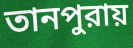
তানপুরায়